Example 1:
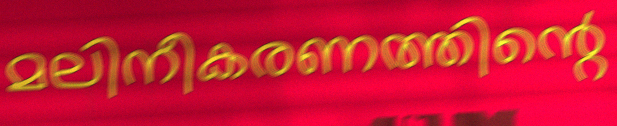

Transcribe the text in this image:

മലിനീകരണത്തിന്റെ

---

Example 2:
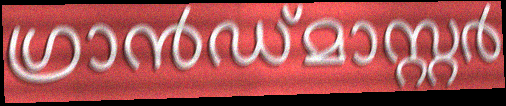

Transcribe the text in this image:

ഗ്രാൻഡ്മാസ്റ്റർ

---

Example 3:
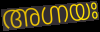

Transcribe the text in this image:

അഗ്നയഃ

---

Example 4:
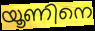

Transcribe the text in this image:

യൂണിനെ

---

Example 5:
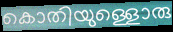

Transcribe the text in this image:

കൊതിയുള്ളൊരു